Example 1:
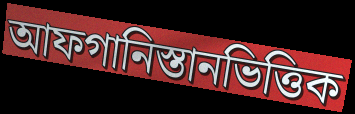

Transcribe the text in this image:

আফগানিস্তানভিত্তিক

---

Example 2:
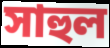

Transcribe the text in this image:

সাহুল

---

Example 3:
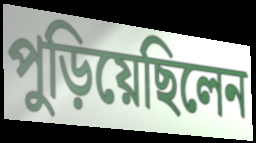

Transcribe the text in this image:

পুড়িয়েছিলেন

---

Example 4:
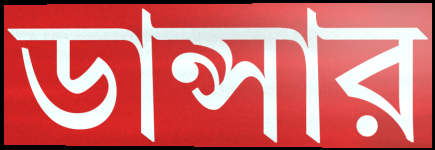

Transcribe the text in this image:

ডান্সার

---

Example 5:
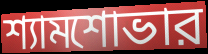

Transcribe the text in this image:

শ্যামশোভার